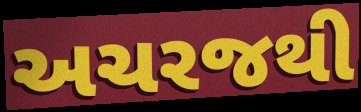
અચરજથી